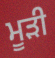
ਮੂੜੀ